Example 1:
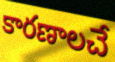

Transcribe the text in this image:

కారణాలచే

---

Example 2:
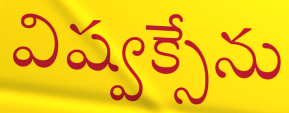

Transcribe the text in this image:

విష్వక్సేను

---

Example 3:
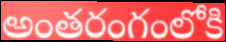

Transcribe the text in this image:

అంతరంగంలోకి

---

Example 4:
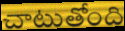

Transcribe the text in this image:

చాటుతోంది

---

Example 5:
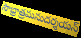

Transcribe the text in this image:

సౌభ్రాత్రమనుదర్శయన్